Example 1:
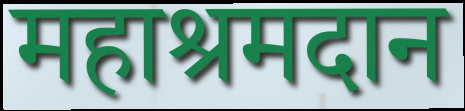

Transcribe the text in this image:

महाश्रमदान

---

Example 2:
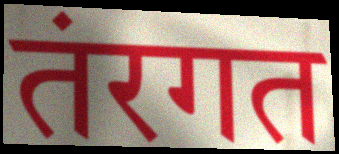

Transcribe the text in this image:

तंरगत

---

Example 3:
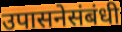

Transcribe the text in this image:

उपासनेसंबंधी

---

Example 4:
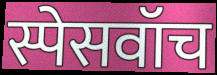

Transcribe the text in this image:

स्पेसवॉच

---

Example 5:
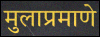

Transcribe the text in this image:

मुलाप्रमाणे